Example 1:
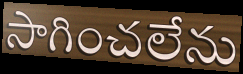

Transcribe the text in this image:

సాగించలేను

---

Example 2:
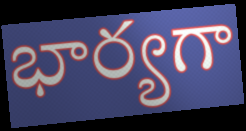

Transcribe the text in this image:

భార్యగా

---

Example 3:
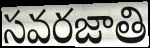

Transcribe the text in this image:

సవరజాతి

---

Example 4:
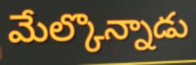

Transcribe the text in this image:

మేల్కొన్నాడు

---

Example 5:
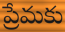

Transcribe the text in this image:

ప్రేమకు